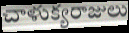
చాళుక్యరాజులు